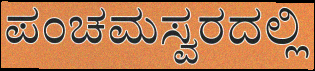
ಪಂಚಮಸ್ವರದಲ್ಲಿ